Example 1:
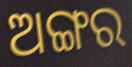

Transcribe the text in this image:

ଅଙ୍ଗର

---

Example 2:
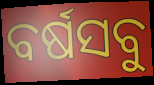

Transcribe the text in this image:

ବର୍ଷସବୁ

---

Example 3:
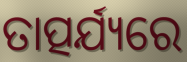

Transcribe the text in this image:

ତାତ୍ପର୍ଯ୍ୟରେ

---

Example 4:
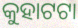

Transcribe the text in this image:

କୁହାଟଟା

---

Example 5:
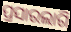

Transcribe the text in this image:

ପ୍ରସାରଲାଗି